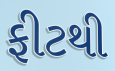
ફીટથી